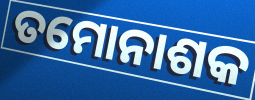
ତମୋନାଶକ